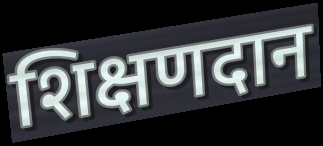
शिक्षणदान